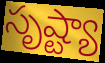
సృష్ట్యా